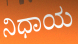
ನಿಧಾಯ